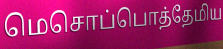
மெசொப்பொத்தேமிய